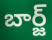
బార్జ్